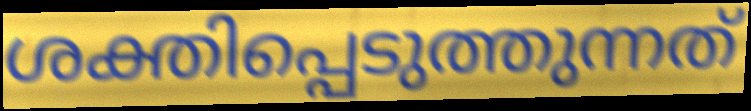
ശക്തിപ്പെടുത്തുന്നത്